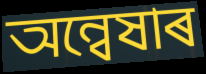
অন্বেষাৰ